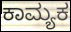
ಕಾಮ್ಯಕ